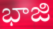
భాజి